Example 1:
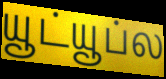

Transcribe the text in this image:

யூட்யூப்ல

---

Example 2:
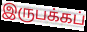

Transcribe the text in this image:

இருபக்கப்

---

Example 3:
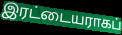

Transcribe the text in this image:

இரட்டையராகப்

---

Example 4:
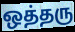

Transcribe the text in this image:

ஒத்தரு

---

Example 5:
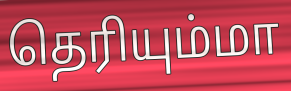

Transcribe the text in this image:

தெரியும்மா